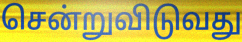
சென்றுவிடுவது